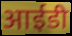
आईडी